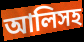
আলিসহ